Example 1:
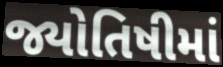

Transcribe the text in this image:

જ્યોતિષીમાં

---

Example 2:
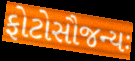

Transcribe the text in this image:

ફોટોસૌજન્યઃ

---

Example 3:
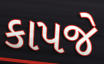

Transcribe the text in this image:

કાપજે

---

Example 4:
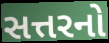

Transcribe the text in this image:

સત્તરનો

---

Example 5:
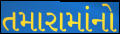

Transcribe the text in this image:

તમારામાંનો